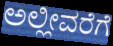
ಅಲ್ಲೀವರೆಗೆ